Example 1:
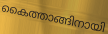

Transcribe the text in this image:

കൈത്താങ്ങിനായി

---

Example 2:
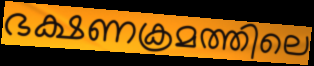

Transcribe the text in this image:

ഭക്ഷണക്രമത്തിലെ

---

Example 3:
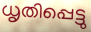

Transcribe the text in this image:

ധൃതിപ്പെട്ടു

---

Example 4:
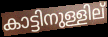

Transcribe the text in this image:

കാട്ടിനുള്ളില്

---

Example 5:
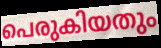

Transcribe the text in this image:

പെരുകിയതും